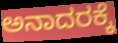
ಅನಾದರಕ್ಕೆ